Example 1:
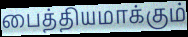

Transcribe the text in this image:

பைத்தியமாக்கும்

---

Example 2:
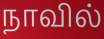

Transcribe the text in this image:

நாவில்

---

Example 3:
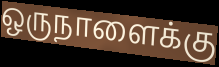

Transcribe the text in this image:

ஒருநாளைக்கு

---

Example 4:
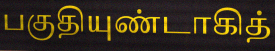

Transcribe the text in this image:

பகுதியுண்டாகித்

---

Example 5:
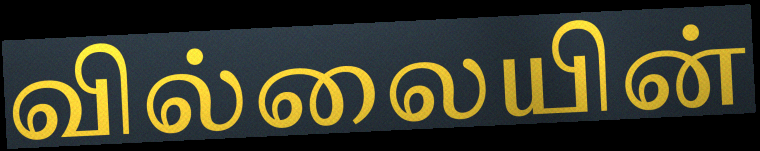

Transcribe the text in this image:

வில்லையின்